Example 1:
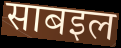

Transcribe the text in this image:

साबइल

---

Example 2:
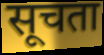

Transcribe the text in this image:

सूचता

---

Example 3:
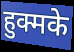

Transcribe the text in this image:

हुक्मके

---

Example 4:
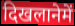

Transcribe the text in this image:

दिखलानेमें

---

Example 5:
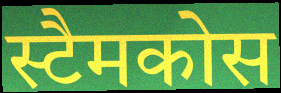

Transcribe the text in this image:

स्टैमकोस